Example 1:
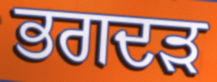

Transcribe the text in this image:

ਭਗਦੜ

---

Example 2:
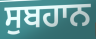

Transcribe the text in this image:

ਸੁਬਹਾਨ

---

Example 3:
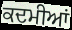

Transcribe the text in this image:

ਕਦਮੀਆਂ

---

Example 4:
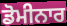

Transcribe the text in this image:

ਡੋਮੀਨਾਰ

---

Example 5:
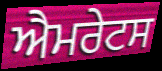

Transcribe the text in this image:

ਐਮਰੇਟਸ